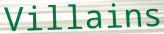
Villains